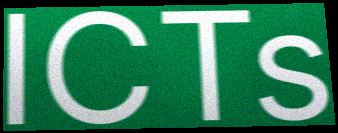
ICTs